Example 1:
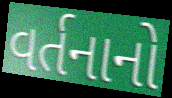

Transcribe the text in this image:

વર્તનાનો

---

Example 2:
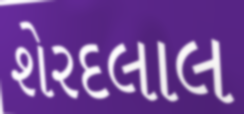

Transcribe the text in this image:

શેરદલાલ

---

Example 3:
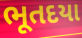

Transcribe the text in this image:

ભૂતદયા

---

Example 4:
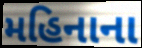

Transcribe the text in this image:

મહિનાના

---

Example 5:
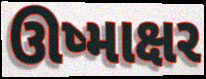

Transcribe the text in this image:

ઊષ્માક્ષર